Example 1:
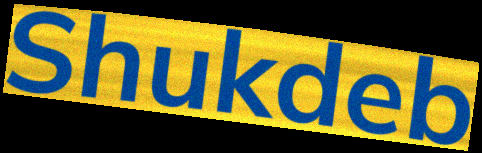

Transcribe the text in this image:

Shukdeb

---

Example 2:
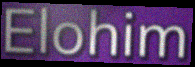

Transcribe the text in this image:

Elohim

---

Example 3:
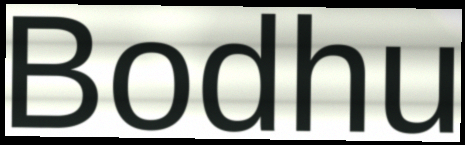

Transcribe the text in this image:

Bodhu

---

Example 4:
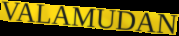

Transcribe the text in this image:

VALAMUDAN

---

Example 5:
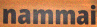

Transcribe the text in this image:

nammai